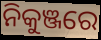
ନିକୁଞ୍ଜରେ